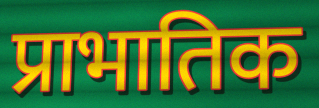
प्राभातिक